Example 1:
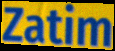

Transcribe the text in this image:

Zatim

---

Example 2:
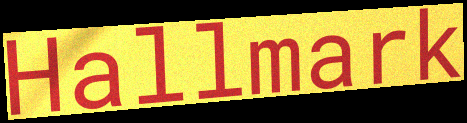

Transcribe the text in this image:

Hallmark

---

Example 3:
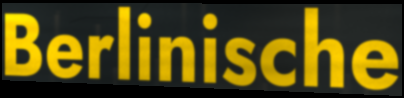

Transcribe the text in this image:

Berlinische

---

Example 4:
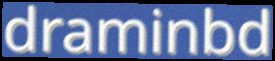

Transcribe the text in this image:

draminbd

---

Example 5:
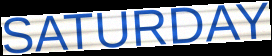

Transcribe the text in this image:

SATURDAY